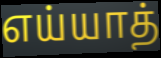
எய்யாத்